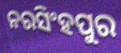
ନରସିଂହପୁର